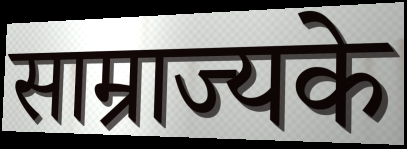
साम्राज्यके